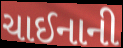
ચાઈનાની